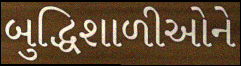
બુદ્ધિશાળીઓને